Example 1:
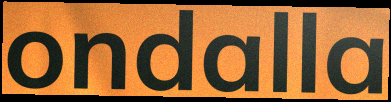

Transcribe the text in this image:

ondalla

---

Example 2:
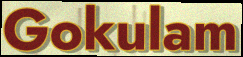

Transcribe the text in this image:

Gokulam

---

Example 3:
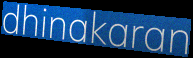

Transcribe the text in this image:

dhinakaran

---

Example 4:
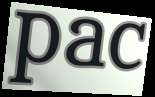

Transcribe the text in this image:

pac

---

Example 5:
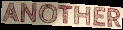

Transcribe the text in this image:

ANOTHER